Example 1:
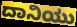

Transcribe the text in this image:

ದಾನಿಯು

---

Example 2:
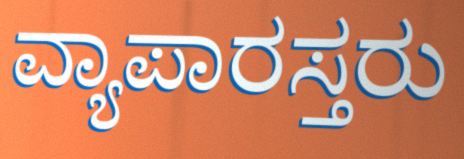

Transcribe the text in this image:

ವ್ಯಾಪಾರಸ್ತರು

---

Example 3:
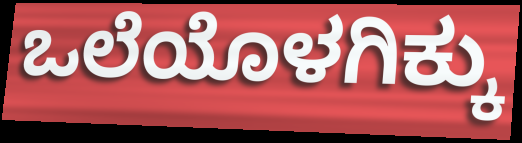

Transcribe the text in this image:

ಒಲೆಯೊಳಗಿಕ್ಕು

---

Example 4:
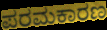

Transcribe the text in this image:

ಪರಮಕಾರಣ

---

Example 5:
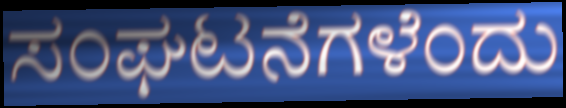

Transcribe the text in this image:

ಸಂಘಟನೆಗಳೆಂದು